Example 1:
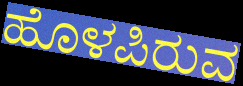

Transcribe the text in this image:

ಹೊಳಪಿರುವ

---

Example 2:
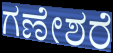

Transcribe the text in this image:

ಗಣೇಶರೆ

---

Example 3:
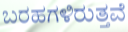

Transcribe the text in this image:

ಬರಹಗಳಿರುತ್ತವೆ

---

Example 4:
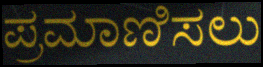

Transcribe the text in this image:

ಪ್ರಮಾಣಿಸಲು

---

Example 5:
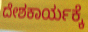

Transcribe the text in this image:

ದೇಶಕಾರ್ಯಕ್ಕೆ